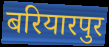
बरियारपुर